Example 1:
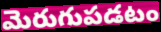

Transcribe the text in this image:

మెరుగుపడటం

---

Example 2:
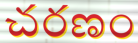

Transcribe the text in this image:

చరణం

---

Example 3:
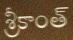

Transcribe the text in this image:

శ్రీకాంత్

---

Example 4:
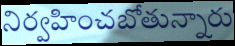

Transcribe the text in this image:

నిర్వహించబోతున్నారు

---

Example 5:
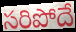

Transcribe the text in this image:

సరిపోదే